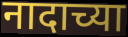
नादाच्या